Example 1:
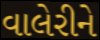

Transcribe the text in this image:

વાલેરીને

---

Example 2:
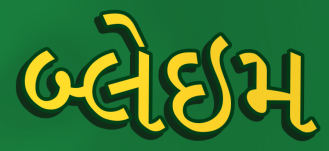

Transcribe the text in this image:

બ્લેઇમ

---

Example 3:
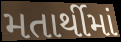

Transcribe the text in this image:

મતાર્થીમાં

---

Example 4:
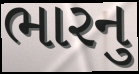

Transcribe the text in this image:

ભારનુ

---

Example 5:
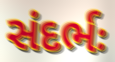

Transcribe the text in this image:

સંદર્ભઃ